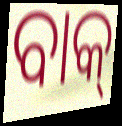
ବାକ୍